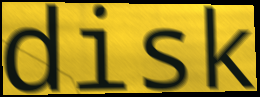
disk